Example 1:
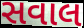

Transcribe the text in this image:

સવાલ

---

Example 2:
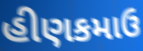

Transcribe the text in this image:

હીણકમાઉ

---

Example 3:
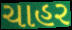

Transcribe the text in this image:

ચાહર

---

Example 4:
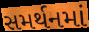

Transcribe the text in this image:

સમર્થનમાં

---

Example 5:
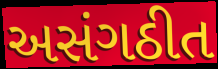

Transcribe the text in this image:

અસંગઠીત